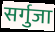
सर्गुजा